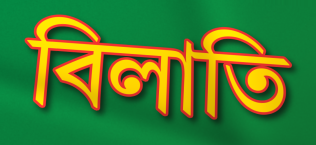
বিলাতি